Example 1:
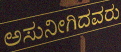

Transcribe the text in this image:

ಅಸುನೀಗಿದವರು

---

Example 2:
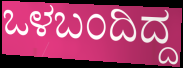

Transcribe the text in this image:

ಒಳಬಂದಿದ್ದ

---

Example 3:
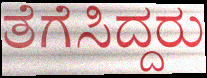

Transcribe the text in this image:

ತೆಗೆಸಿದ್ದರು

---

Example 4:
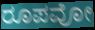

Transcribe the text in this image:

ರೂಪವೋ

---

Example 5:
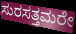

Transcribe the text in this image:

ಸುರಸತ್ತಮರೇ